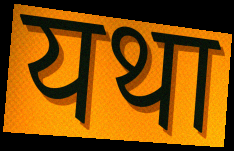
यथा